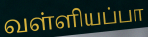
வள்ளியப்பா